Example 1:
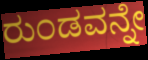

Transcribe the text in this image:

ರುಂಡವನ್ನೇ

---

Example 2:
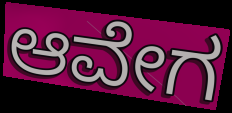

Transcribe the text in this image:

ಆವೇಗ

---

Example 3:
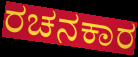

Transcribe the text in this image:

ರಚನಕಾರ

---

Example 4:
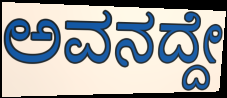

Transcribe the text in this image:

ಅವನದ್ದೇ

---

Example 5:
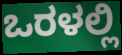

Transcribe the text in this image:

ಒರಳಲ್ಲಿ